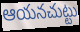
ఆయనచుట్టు